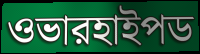
ওভারহাইপড